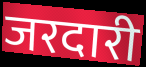
जरदारी